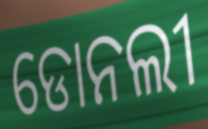
ଡୋନଲୀ